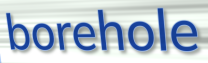
borehole